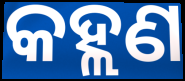
କହ୍ଲଣ